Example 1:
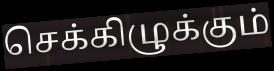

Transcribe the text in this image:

செக்கிழுக்கும்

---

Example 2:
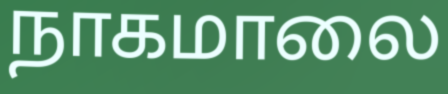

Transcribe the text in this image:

நாகமாலை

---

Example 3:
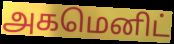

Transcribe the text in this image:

அகமெனிட்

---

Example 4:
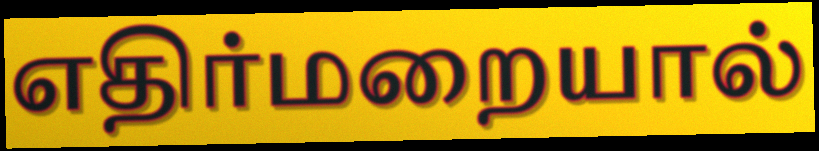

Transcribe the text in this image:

எதிர்மறையால்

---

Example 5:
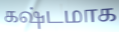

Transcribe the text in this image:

கஷ்டமாக